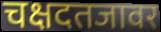
चक्षदतजावर